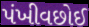
પંખીવછોઈ